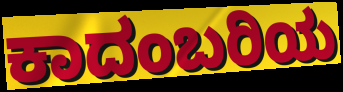
ಕಾದಂಬರಿಯ